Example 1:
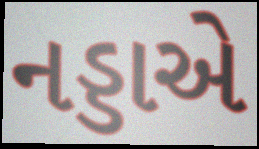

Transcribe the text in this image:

નડ્ડાએ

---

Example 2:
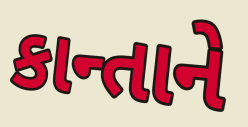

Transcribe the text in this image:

કાન્તાને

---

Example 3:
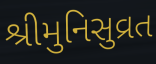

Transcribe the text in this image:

શ્રીમુનિસુવ્રત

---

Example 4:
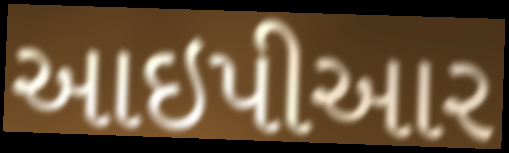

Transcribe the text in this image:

આઇપીઆર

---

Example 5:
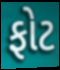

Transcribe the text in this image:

ફોટ